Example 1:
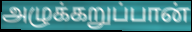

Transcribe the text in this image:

அழுக்கறுப்பான்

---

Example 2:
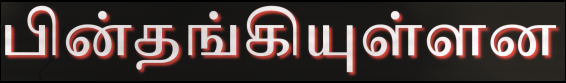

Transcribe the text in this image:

பின்தங்கியுள்ளன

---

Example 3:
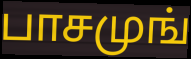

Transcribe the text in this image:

பாசமுங்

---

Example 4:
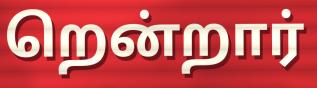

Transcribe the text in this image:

றென்றார்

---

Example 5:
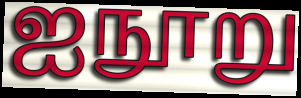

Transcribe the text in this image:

ஐநூறு